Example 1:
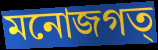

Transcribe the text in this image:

মনোজগত্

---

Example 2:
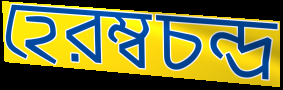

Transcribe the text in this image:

হেরম্বচন্দ্র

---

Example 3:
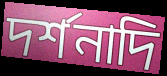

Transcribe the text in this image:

দর্শনাদি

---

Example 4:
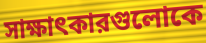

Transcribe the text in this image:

সাক্ষাৎকারগুলোকে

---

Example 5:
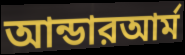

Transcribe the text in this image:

আন্ডারআর্ম